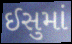
ઈસુમાં